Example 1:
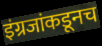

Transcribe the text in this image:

इंग्रजांकडूनच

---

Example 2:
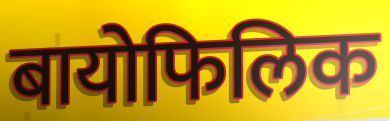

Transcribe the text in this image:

बायोफिलिक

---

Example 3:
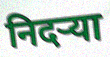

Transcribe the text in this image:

निदऱ्या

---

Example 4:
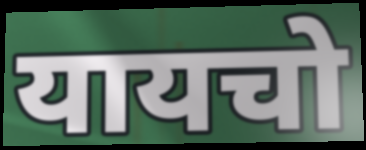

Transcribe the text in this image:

यायचो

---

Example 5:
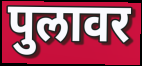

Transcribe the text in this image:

पुलावर